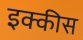
इक्कीस